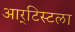
आर्टिस्टला